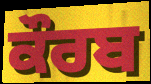
ਕੌਰਬ